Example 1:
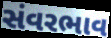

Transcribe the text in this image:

સંવરભાવ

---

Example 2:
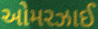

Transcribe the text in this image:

ઓમરઝાઈ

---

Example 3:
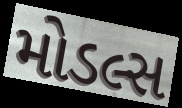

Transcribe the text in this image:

મોડલ્સ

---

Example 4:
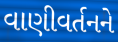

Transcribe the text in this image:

વાણીવર્તનને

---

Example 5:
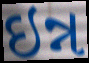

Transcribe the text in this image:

ઇન્ન